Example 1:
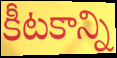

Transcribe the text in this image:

కీటకాన్ని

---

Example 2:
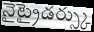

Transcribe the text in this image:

నైట్రైడర్స్కు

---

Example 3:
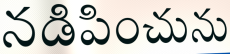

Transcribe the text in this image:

నడిపించును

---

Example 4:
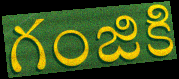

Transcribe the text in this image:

గంజికి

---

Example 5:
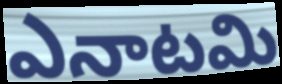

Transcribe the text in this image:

ఎనాటమి